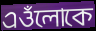
এওঁলোকে